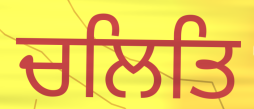
ਚਲਿਤਿ